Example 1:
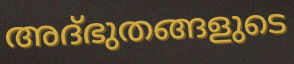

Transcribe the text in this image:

അദ്ഭുതങ്ങളുടെ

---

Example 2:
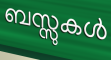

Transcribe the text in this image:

ബസ്സുകൾ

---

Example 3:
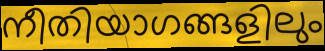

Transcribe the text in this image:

നീതിയാഗങ്ങളിലും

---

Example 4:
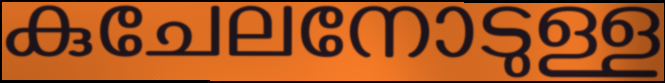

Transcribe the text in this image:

കുചേലനോടുള്ള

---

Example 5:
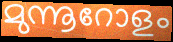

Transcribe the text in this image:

മുന്നൂറോളം